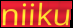
niiku